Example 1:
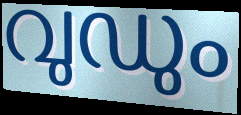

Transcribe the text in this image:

വുഡും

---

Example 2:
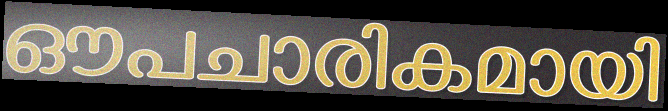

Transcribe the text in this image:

ഔപചാരികമായി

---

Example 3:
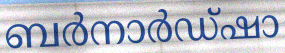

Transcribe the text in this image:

ബർനാർഡ്ഷാ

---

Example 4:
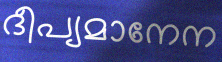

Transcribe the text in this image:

ദീപ്യമാനേന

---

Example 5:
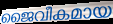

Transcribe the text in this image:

ജൈവീകമായ